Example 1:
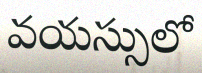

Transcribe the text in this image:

వయస్సులో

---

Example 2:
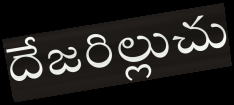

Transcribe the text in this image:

దేజరిల్లుచు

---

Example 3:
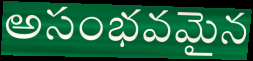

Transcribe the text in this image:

అసంభవమైన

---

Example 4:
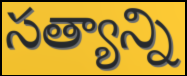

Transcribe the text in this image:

సత్యాన్ని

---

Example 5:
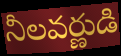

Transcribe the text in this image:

నీలవర్ణుడి